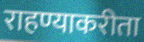
राहण्याकरीता